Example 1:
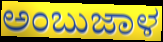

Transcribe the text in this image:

ಅಂಬುಜಾಳ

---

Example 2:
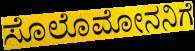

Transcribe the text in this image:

ಸೊಲೊಮೋನನಿಗೆ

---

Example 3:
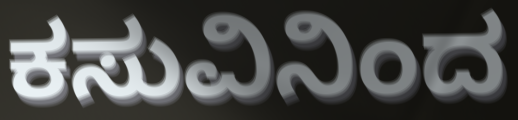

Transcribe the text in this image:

ಕಸುವಿನಿಂದ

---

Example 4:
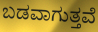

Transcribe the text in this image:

ಬಡವಾಗುತ್ತವೆ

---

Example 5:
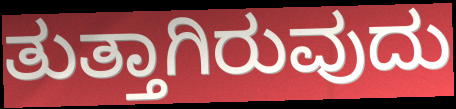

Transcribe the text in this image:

ತುತ್ತಾಗಿರುವುದು